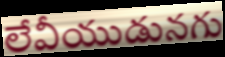
లేవీయుడునగు